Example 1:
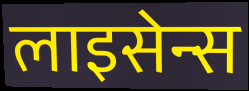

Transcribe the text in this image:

लाइसेन्स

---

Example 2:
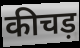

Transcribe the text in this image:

कीचड़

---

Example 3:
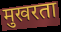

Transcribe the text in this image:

मुखरता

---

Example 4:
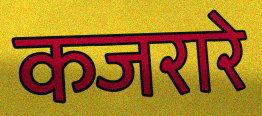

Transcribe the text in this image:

कजरारे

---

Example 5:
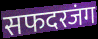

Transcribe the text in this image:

सफदरजंग